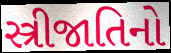
સ્ત્રીજાતિનો